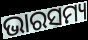
ଭାରସମ୍ୟ